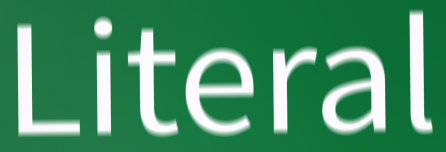
Literal